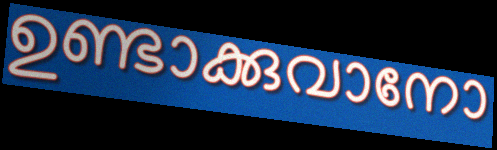
ഉണ്ടാക്കുവാനോ